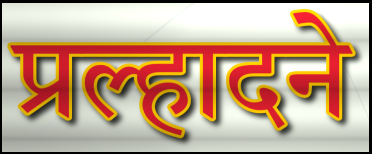
प्रल्हादने